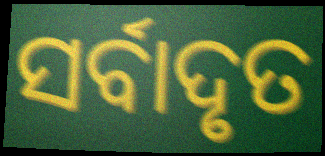
ସର୍ବାଦୃତ